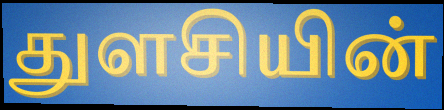
துளசியின்